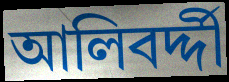
আলিবর্দ্দী